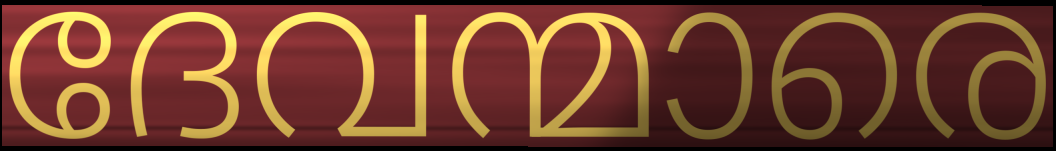
ദേവന്മാരെ